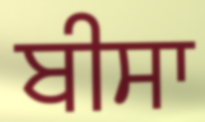
ਬੀਸਾ